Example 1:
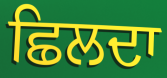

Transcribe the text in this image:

ਛਿਲਦਾ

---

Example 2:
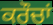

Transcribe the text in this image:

ਕਰੌਚਾਂ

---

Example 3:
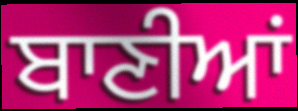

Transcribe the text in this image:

ਬਾਣੀਆਂ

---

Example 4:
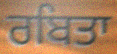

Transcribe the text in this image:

ਰਬਿਤਾ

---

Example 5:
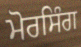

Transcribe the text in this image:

ਮੋਰਸਿੰਗ